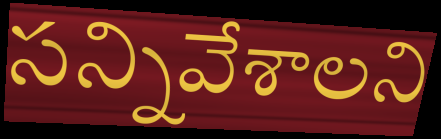
సన్నివేశాలని